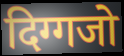
दिग्गजो